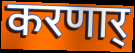
करणार्